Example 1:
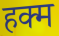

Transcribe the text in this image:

हक्म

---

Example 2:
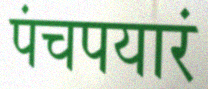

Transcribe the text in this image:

पंचपयारं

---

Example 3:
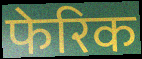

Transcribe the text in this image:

फेरिक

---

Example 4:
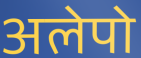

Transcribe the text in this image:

अलेपो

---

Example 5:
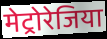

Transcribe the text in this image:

मेट्रोरेजिया